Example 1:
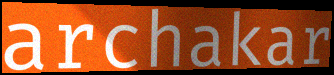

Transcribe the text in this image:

archakar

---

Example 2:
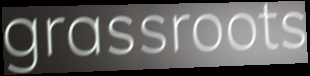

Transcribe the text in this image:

grassroots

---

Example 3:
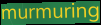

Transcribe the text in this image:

murmuring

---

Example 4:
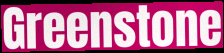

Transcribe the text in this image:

Greenstone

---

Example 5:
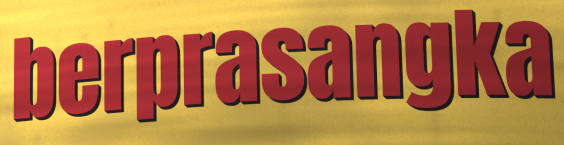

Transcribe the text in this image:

berprasangka